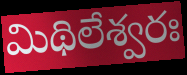
మిథిలేశ్వరః